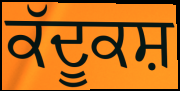
ਕੱਦੂਕਸ਼